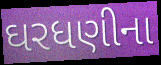
ઘરધણીના